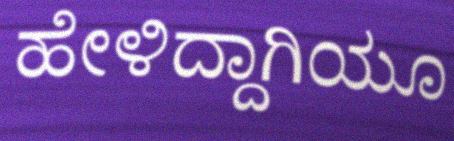
ಹೇಳಿದ್ದಾಗಿಯೂ